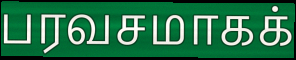
பரவசமாகக்